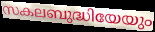
സകലബുദ്ധിയേയും